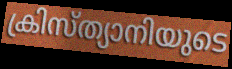
ക്രിസ്ത്യാനിയുടെ